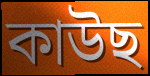
কাউছ